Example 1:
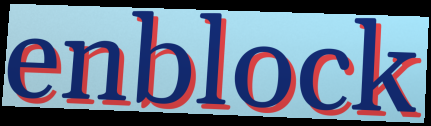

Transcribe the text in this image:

enblock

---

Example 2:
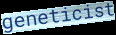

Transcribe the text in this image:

geneticist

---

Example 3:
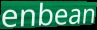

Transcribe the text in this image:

enbean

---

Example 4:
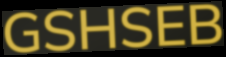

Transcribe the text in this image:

GSHSEB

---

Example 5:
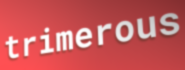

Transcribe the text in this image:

trimerous